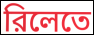
রিলেতে